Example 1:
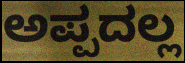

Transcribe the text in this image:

ಅಪ್ಪದಲ್ಲ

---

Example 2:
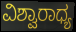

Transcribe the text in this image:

ವಿಶ್ವಾರಾಧ್ಯ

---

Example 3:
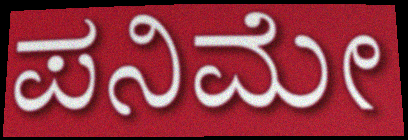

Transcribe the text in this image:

ಪನಿಮೇ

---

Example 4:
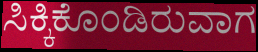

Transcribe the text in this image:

ಸಿಕ್ಕಿಕೊಂಡಿರುವಾಗ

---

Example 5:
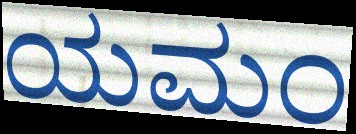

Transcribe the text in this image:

ಯಮಂ